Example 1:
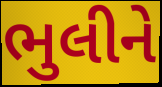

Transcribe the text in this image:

ભુલીને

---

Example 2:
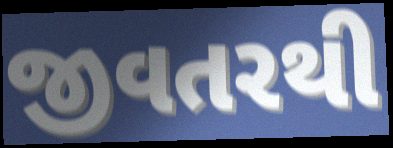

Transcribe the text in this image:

જીવતરથી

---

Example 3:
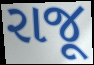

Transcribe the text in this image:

રાજૂ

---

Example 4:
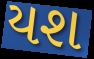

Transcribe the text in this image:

યશ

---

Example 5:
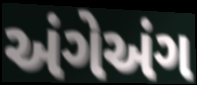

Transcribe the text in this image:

અંગેઅંગ